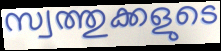
സ്വത്തുക്കളുടെ